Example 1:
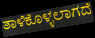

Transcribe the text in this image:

ತಾಳಿಕೊಳ್ಳಲಾಗದೆ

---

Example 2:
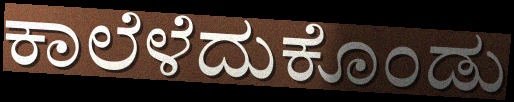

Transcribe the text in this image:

ಕಾಲೆಳೆದುಕೊಂಡು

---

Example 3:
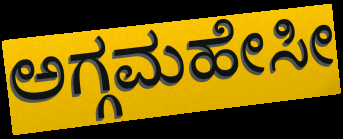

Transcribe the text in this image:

ಅಗ್ಗಮಹೇಸೀ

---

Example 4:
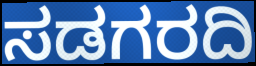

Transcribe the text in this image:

ಸಡಗರದಿ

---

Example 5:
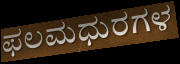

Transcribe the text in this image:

ಫಲಮಧುರಗಳ